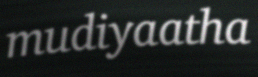
mudiyaatha